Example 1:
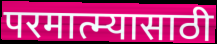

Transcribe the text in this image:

परमात्म्यासाठी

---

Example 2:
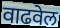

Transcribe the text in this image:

वाढवेल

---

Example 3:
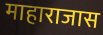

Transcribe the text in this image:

माहाराजास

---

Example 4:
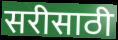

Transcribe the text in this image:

सरीसाठी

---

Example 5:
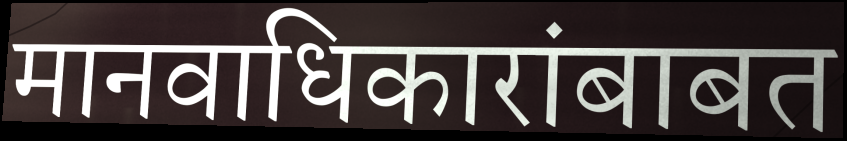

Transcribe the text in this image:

मानवाधिकारांबाबत